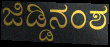
ಜಿಡ್ಡಿನಂಶ